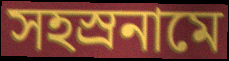
সহস্ৰনামে